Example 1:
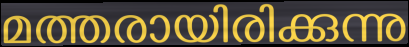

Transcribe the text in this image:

മത്തരായിരിക്കുന്നു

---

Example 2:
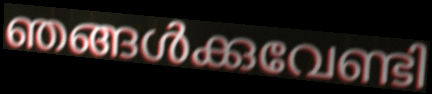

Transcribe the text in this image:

ഞങ്ങൾക്കുവേണ്ടി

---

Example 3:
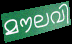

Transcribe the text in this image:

മൗലവി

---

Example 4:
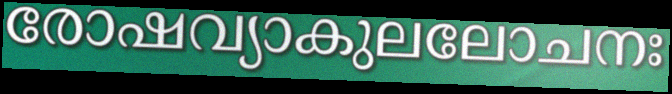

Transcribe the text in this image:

രോഷവ്യാകുലലോചനഃ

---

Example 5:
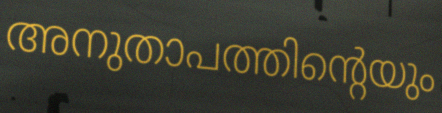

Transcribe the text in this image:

അനുതാപത്തിന്റെയും